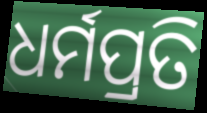
ଧର୍ମପ୍ରତି